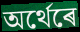
অৰ্থেৰে